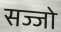
सज्जो